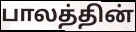
பாலத்தின்